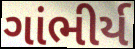
ગાંભીર્ય